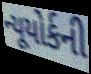
ન્યૂયોર્કની